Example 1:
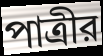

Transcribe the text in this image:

পাত্রীর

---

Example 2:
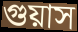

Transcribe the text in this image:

গুয়াস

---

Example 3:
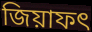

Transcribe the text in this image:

জিয়াফৎ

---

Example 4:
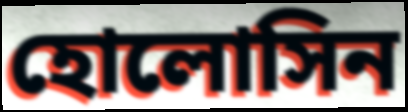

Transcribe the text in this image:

হোলোসিন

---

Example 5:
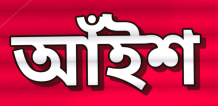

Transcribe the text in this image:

আঁইশ